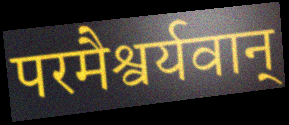
परमैश्वर्यवान्